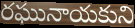
రఘునాయకుని